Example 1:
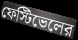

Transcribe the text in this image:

ফেস্টিভেলের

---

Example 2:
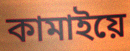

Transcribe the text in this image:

কামাইয়ে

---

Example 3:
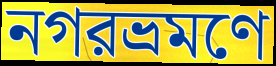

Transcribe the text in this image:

নগরভ্রমণে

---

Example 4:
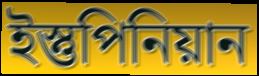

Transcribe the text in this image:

ইস্তুপিনিয়ান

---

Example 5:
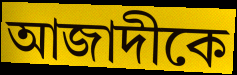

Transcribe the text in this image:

আজাদীকে